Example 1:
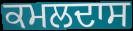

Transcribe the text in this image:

ਕਮਲਦਾਸ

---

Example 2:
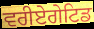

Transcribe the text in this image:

ਵਰੀਏਗੇਟਿਡ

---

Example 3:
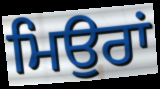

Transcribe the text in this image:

ਮਿਉਰਾਂ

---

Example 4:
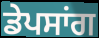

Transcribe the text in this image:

ਡੇਪਸਾਂਗ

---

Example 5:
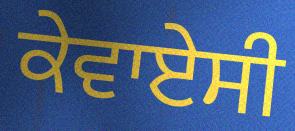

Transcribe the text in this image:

ਕੇਵਾਏਸੀ